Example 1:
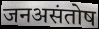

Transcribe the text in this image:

जनअसंतोष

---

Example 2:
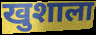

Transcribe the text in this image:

खुशाला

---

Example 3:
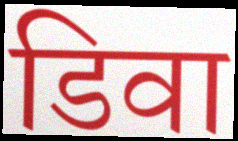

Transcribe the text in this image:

डिवा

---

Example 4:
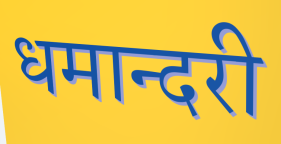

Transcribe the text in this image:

धमान्दरी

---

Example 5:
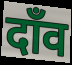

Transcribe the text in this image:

दाँव